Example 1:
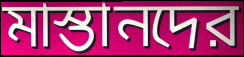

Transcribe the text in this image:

মাস্তানদের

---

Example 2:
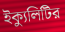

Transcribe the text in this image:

ইক্যুলিটির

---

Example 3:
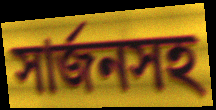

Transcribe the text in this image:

সার্জনসহ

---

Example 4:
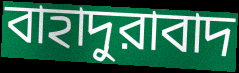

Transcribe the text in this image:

বাহাদুরাবাদ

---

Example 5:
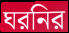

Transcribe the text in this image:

ঘরনির